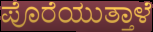
ಪೊರೆಯುತ್ತಾಳೆ